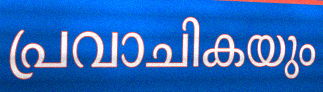
പ്രവാചികയും